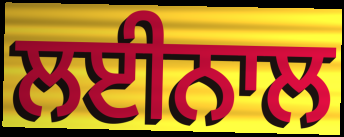
ਲਈਨਾਲ